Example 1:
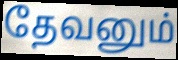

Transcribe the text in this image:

தேவனும்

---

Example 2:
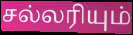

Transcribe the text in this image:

சல்லரியும்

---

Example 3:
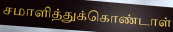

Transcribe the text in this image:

சமாளித்துக்கொண்டாள்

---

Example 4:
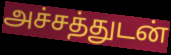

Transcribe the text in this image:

அச்சத்துடன்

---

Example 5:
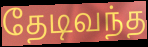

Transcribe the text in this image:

தேடிவந்த